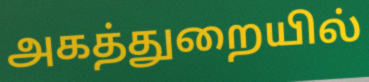
அகத்துறையில்